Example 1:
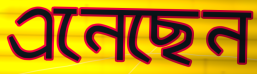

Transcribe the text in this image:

এনেছেন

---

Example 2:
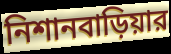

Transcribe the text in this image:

নিশানবাড়িয়ার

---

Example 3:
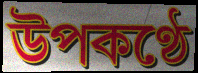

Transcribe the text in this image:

উপকণ্ঠে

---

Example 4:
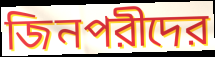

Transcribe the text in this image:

জিনপরীদের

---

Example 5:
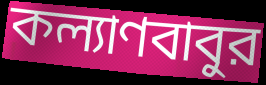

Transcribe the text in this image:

কল্যাণবাবুর